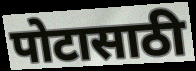
पोटासाठी